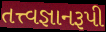
તત્ત્વજ્ઞાનરૂપી